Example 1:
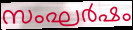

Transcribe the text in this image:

സംഘർഷം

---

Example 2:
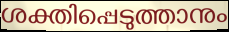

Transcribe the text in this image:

ശക്തിപ്പെടുത്താനും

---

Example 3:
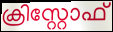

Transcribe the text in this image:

ക്രിസ്റ്റോഫ്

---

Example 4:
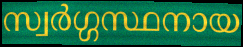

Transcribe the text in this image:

സ്വർഗ്ഗസ്ഥനായ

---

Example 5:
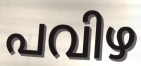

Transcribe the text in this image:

പവിഴ